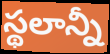
స్థలాన్నీ